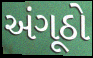
અંગૂઠો